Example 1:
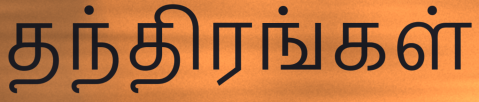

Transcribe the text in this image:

தந்திரங்கள்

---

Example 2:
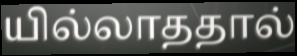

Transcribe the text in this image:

யில்லாததால்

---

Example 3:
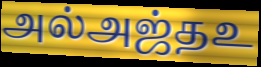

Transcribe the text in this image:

அல்அஜ்தஉ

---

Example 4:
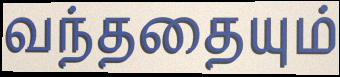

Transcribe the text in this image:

வந்ததையும்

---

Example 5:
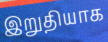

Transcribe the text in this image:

இறுதியாக